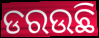
ଡରଉଛି